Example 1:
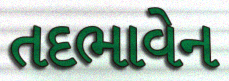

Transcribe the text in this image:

તદભાવેન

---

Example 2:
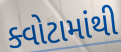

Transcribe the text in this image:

ક્વોટામાંથી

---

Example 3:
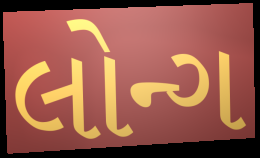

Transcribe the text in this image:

લોન્ગ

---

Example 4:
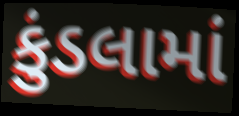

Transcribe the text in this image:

કુંડલામાં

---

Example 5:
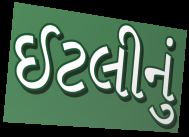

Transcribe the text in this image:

ઈટલીનું